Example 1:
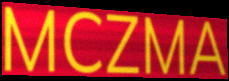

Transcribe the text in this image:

MCZMA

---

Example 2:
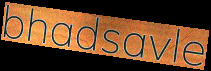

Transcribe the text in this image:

bhadsavle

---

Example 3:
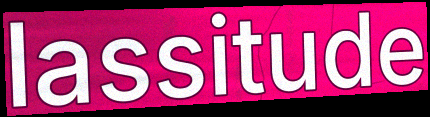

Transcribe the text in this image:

lassitude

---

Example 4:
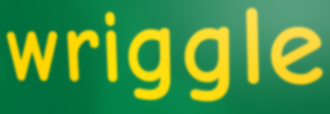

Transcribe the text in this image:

wriggle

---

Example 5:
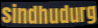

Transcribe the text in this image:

sindhudurg